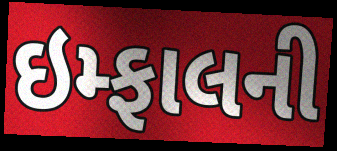
ઇમ્ફાલની